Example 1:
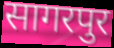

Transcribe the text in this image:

सागरपुर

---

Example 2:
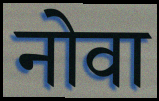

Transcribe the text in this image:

नोवा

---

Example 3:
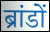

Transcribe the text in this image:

ब्रांडों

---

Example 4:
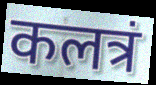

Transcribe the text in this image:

कलत्रं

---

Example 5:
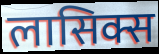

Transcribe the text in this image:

लासिक्स